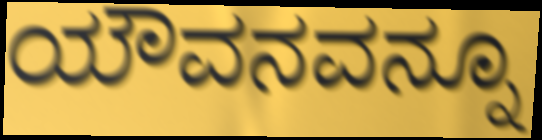
ಯೌವನವನ್ನೂ